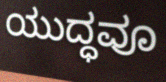
ಯುದ್ಧವೂ